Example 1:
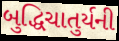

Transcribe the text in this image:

બુદ્ધિચાતુર્યની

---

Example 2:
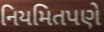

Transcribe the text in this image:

નિયમિતપણે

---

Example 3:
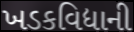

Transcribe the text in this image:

ખડકવિદ્યાની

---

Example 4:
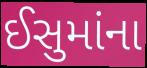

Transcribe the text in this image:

ઈસુમાંના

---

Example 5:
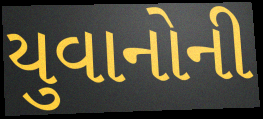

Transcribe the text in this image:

યુવાનોની